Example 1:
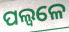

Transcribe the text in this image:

ପଲ୍ୱଳେ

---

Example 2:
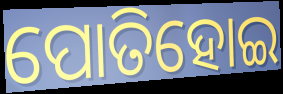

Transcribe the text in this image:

ପୋତିହୋଇ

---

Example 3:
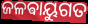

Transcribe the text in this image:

ଜଳଵାୟୁଗତ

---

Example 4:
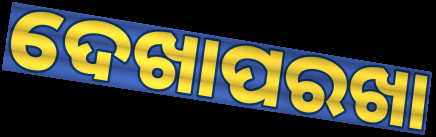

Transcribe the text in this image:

ଦେଖାପରଖା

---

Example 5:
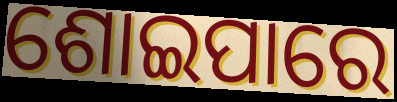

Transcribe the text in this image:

ଶୋଇପାରେ